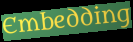
Embedding